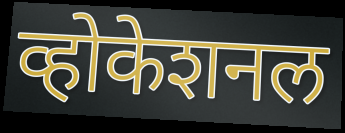
व्होकेशनल